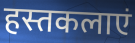
हस्तकलाएं